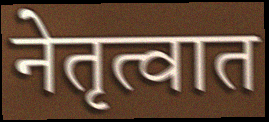
नेतृत्वात